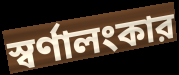
স্বর্ণালংকার